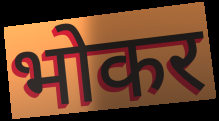
भोकर